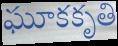
ఘూకకృతి